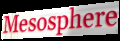
Mesosphere